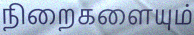
நிறைகளையும்